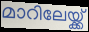
മാറിലേയ്ക്ക്